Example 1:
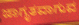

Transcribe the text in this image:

ಜಾಗೃತವಾಗುವ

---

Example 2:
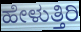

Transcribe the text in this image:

ಹೇಳುತ್ತಿರಿ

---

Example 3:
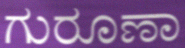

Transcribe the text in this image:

ಗುರೂಣಾ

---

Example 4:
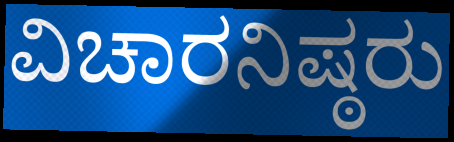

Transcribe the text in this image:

ವಿಚಾರನಿಷ್ಠರು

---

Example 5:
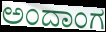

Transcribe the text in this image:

ಅಂದಾಂಗ